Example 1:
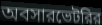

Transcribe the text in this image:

অবসারভেটরির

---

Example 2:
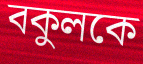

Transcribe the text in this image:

বকুলকে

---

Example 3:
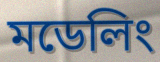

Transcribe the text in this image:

মডেলিং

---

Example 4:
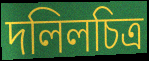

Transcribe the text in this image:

দলিলচিত্র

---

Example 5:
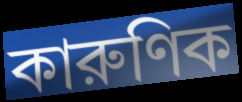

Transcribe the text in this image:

কারুণিক